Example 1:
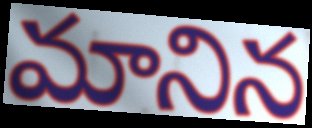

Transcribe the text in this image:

మానిన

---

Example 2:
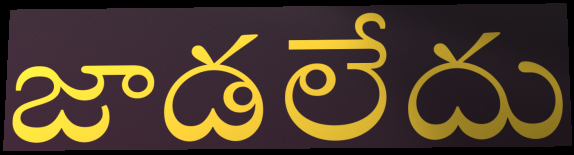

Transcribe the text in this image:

జాడలేదు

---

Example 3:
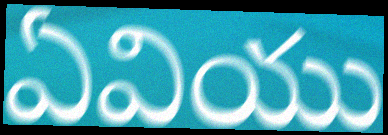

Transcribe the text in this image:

ఏవియు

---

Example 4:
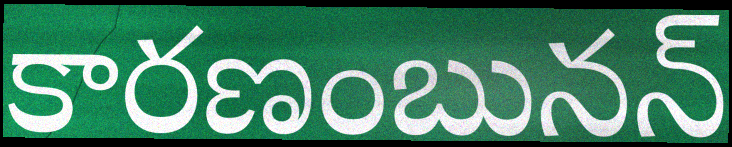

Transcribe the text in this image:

కారణంబునన్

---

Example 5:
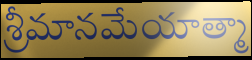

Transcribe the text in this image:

శ్రీమానమేయాత్మా